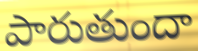
పారుతుందా